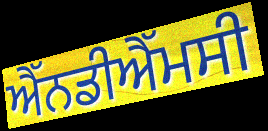
ਐੱਨਡੀਐੱਮਸੀ